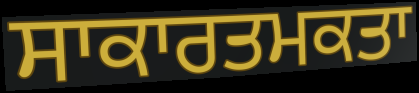
ਸਾਕਾਰਤਮਕਤਾ